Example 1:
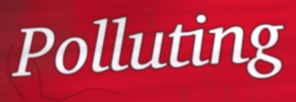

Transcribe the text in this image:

Polluting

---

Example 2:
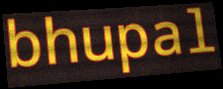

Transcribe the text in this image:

bhupal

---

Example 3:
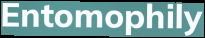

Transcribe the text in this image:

Entomophily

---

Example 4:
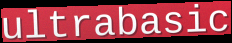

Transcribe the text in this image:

ultrabasic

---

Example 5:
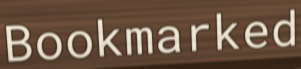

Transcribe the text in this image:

Bookmarked